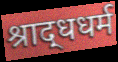
श्राद्धधर्म